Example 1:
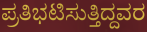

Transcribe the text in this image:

ಪ್ರತಿಭಟಿಸುತ್ತಿದ್ದವರ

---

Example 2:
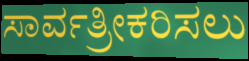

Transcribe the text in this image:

ಸಾರ್ವತ್ರೀಕರಿಸಲು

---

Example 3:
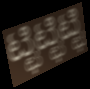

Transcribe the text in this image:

ಟ್ಟಿಟ್ಟಿಟ್ಟಿ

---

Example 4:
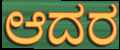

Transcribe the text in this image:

ಆದರ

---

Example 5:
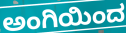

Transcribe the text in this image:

ಅಂಗಿಯಿಂದ